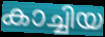
കാച്ചിയ